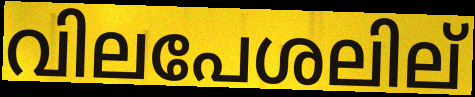
വിലപേശലില്